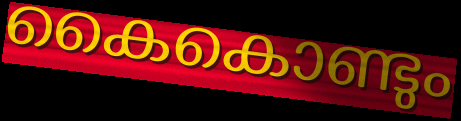
കൈകൊണ്ടും